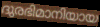
ദുരഭിമാനിയായ